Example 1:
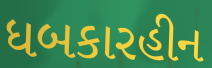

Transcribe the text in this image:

ધબકારહીન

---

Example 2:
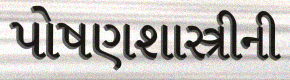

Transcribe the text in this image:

પોષણશાસ્ત્રીની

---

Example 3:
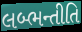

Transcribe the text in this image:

લબ્ભન્તીતિ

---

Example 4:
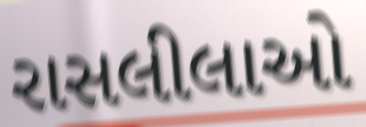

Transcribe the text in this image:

રાસલીલાઓ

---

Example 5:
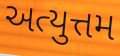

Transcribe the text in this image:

અત્યુત્તમ